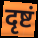
दृष्टं